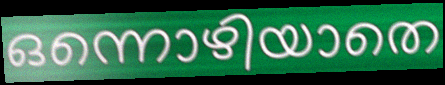
ഒന്നൊഴിയാതെ